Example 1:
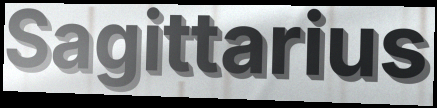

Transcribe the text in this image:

Sagittarius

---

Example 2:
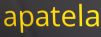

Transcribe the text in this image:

apatela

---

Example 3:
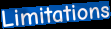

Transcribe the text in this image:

Limitations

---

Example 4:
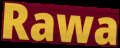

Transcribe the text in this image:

Rawa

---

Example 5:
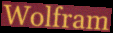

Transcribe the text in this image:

Wolfram